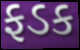
ફડક